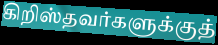
கிறிஸ்தவர்களுக்குத்